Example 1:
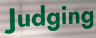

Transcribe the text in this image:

Judging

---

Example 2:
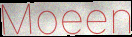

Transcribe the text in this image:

Moeen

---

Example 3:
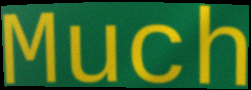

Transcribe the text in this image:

Much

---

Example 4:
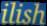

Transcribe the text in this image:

ilish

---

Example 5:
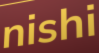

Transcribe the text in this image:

nishi